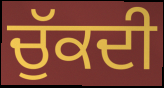
ਚੁੱਕਦੀ